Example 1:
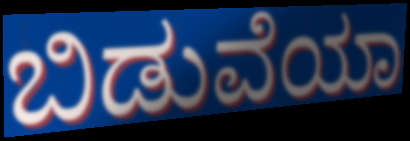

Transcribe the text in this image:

ಬಿಡುವೆಯಾ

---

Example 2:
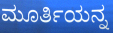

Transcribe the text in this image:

ಮೂರ್ತಿಯನ್ನ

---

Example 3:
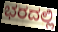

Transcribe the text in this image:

ಭರದಲ್ಲಿ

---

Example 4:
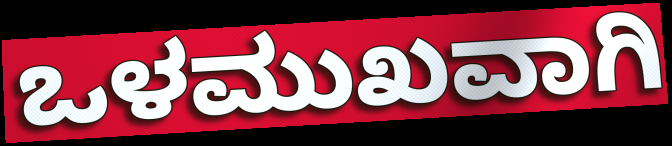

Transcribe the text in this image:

ಒಳಮುಖವಾಗಿ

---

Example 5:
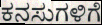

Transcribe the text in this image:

ಕನಸುಗಳಿಗೆ